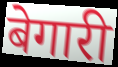
बेगारी